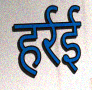
हर्रई